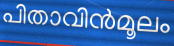
പിതാവിൻമൂലം